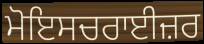
ਮੋਇਸਚਰਾਈਜ਼ਰ